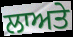
ਲਾਅਤੇ